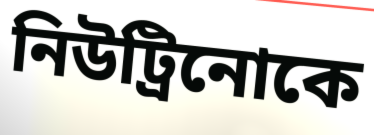
নিউট্রিনোকে